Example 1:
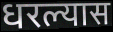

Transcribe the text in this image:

धरल्यास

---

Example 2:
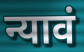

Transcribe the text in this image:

न्यावं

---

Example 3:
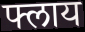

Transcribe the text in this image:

फ्लाय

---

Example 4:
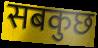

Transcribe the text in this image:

सबकुछ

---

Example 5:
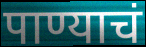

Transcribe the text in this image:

पाण्याचं